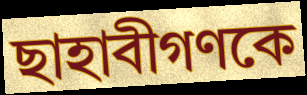
ছাহাবীগণকে